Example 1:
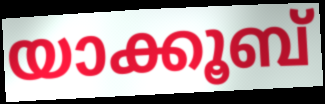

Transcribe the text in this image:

യാക്കൂബ്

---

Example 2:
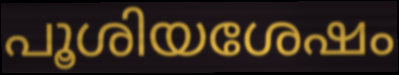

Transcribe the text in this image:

പൂശിയശേഷം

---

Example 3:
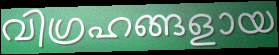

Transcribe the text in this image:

വിഗ്രഹങ്ങളായ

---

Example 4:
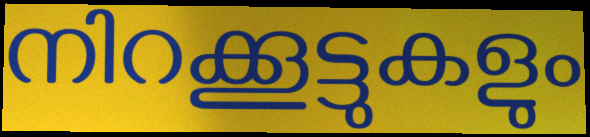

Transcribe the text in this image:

നിറക്കൂട്ടുകളും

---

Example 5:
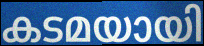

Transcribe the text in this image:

കടമയായി